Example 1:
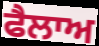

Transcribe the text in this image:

ਫੈਲਾਅ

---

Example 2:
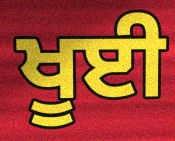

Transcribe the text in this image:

ਖੂਈ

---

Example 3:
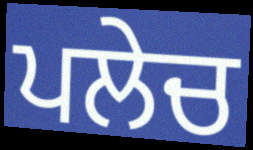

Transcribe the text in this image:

ਪਲੇਚ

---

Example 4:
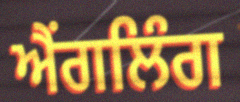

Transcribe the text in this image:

ਐਂਗਲਿੰਗ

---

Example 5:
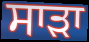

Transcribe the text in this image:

ਸਾੜਾ